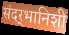
संदर्भानिशी